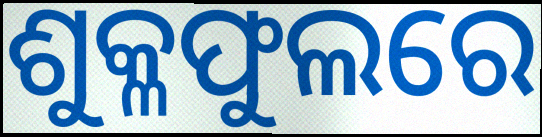
ଶୁକ୍ଳଫୁଲରେ